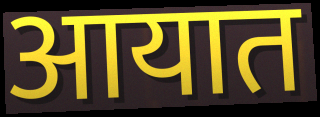
आयात